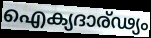
ഐക്യദാര്ഢ്യം